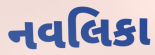
નવલિકા